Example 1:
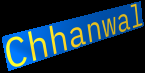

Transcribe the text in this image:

Chhanwal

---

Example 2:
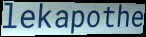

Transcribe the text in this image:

lekapothe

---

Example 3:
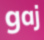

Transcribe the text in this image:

gaj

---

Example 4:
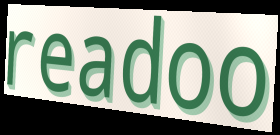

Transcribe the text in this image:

readoo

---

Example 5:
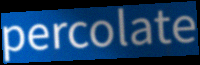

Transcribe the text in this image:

percolate